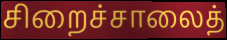
சிறைச்சாலைத்